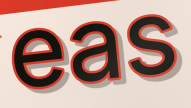
eas